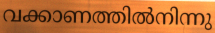
വക്കാണത്തിൽനിന്നു